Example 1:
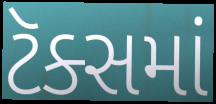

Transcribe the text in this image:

ટૅક્સમાં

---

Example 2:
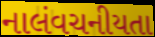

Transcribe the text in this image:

નાલંવચનીયતા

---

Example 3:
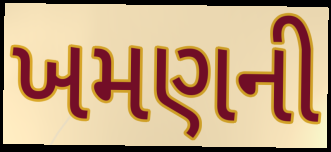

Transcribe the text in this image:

ખમણની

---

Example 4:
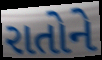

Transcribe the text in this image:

રાતોને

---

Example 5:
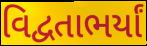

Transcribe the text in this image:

વિદ્વતાભર્યાં